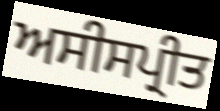
ਅਸੀਸਪ੍ਰੀਤ